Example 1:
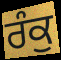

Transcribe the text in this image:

ਰੰਕੁ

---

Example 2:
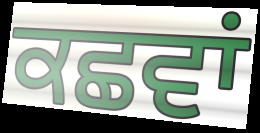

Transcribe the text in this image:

ਕਛਵਾਂ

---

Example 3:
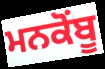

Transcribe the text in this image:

ਮਨਕੋਂਬੂ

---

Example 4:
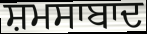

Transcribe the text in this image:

ਸ਼ਮਸਾਬਾਦ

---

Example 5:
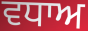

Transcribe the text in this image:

ਵਧਾਅ